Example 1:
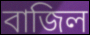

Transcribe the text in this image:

বাজিল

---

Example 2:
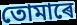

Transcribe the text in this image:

তোমাৰে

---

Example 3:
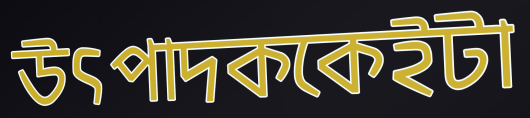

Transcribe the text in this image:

উৎপাদককেইটা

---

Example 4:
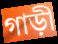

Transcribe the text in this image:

গাড়ী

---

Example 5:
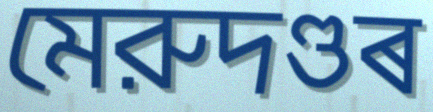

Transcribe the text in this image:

মেৰুদণ্ডৰ